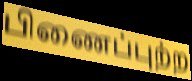
பிணைப்புற்ற